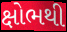
ક્ષોભથી